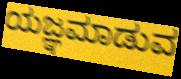
ಯಜ್ಞಮಾಡುವ